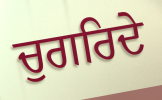
ਚੁਗਰਿਦੇ